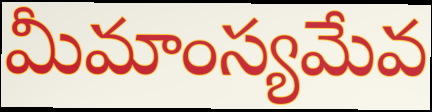
మీమాంస్యమేవ